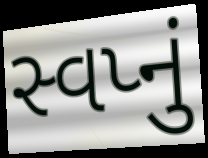
સ્વપ્નું